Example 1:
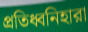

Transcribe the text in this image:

প্রতিধ্বনিহারা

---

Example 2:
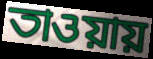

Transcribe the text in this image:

তাওয়ায়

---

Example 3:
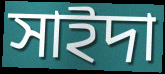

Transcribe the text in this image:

সাইদা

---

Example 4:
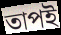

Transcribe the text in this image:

তাপই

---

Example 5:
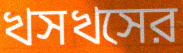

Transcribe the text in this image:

খসখসের